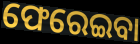
ଫେରେଇବା